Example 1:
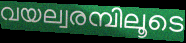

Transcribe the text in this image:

വയല്വരമ്പിലൂടെ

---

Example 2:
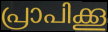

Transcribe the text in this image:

പ്രാപിക്കൂ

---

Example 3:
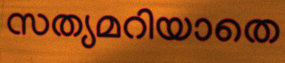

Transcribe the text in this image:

സത്യമറിയാതെ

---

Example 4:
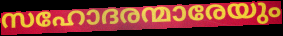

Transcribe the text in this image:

സഹോദരന്മാരേയും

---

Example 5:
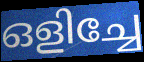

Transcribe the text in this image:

ഒളിച്ചേ